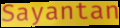
Sayantan